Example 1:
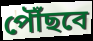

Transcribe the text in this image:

পৌঁছবে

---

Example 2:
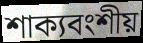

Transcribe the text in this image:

শাক্যবংশীয়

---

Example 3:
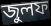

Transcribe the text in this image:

জুলফ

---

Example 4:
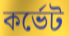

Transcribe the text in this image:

কর্ভেট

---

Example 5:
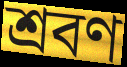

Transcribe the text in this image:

শ্রবণ